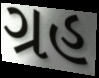
ગ્રહ